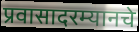
प्रवासादरम्यानचे